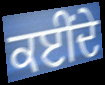
ਕਈਂਦੇ